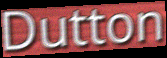
Dutton